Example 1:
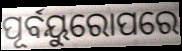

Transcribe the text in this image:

ପୂର୍ବୟୁରୋପରେ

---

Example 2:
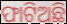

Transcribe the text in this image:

ଫାଟିଅଛି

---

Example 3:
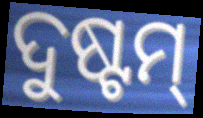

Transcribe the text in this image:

ଦୁଷ୍ଟମ୍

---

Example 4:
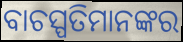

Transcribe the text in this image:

ବାଚସ୍ପତିମାନଙ୍କର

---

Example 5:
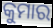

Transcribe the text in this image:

କୁମାର